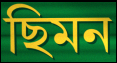
ছিমন